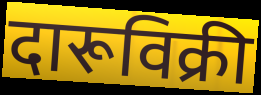
दारूविक्री